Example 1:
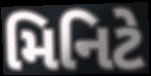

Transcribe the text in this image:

મિનિટે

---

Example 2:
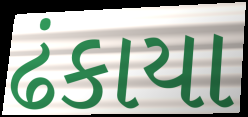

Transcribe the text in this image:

ઢંકાયા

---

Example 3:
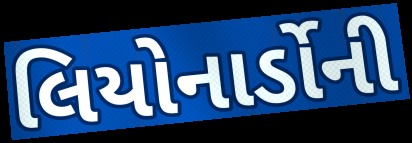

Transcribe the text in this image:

લિયોનાર્ડોની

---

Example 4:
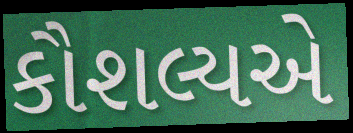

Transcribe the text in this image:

કૌશલ્યએ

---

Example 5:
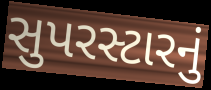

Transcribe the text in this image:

સુપરસ્ટારનું